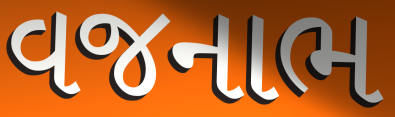
વજનાભ